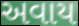
અવાય